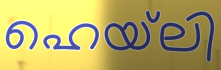
ഹെയ്‌ലി